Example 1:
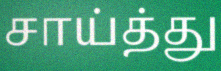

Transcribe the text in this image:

சாய்த்து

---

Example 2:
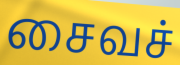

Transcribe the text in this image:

சைவச்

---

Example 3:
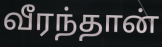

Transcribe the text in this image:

வீரந்தான்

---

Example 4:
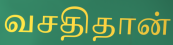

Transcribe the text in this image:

வசதிதான்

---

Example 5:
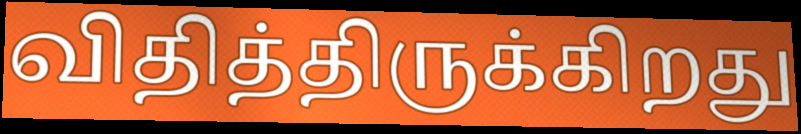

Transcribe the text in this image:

விதித்திருக்கிறது